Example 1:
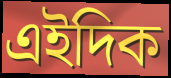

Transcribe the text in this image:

এইদিক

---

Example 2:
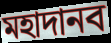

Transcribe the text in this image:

মহাদানব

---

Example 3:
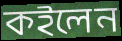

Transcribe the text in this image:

কইলেন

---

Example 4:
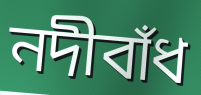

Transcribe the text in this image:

নদীবাঁধ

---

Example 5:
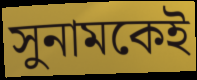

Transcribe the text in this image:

সুনামকেই